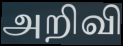
அறிவி